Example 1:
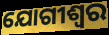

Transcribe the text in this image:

ଯୋଗୀଶ୍ୱର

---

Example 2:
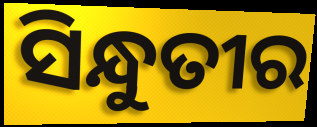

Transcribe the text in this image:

ସିନ୍ଧୁତୀର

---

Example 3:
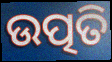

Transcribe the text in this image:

ଉତ୍ପତି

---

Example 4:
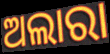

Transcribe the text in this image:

ଅଲାରା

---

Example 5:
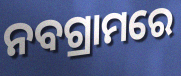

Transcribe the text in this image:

ନବଗ୍ରାମରେ